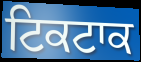
ਟਿਕਟਾਕ